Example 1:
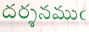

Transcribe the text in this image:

దర్శనముఁ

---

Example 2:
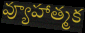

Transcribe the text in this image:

వ్యూహాత్మక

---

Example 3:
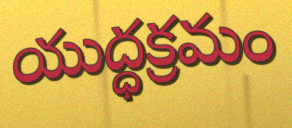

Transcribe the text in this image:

యుద్ధక్రమం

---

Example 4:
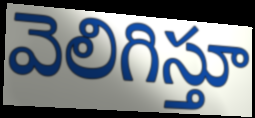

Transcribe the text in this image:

వెలిగిస్తూ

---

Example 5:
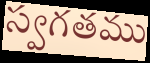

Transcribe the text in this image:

స్వగతము